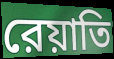
রেয়াতি